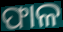
ଫାଳ